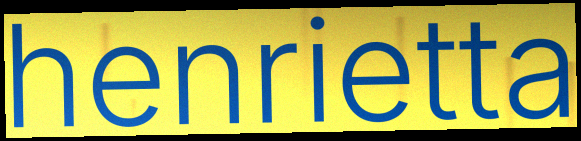
henrietta